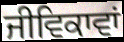
ਜੀਵਿਕਾਵਾਂ